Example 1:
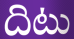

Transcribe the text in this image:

దిటు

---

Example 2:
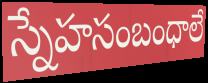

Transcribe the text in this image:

స్నేహసంబంధాలే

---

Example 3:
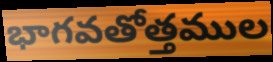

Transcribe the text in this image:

భాగవతోత్తముల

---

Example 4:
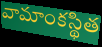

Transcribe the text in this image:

వామాంకస్థిత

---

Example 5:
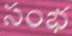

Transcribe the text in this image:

సంభ